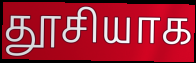
தூசியாக